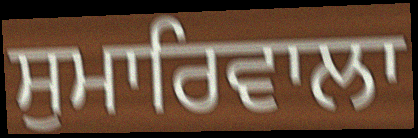
ਸੁਮਾਰਿਵਾਲਾ